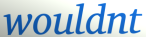
wouldnt